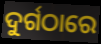
ଦୁର୍ଗଠାରେ